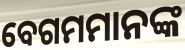
ବେଗମମାନଙ୍କ